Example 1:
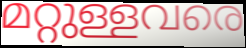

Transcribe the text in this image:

മറ്റുള്ളവരെ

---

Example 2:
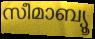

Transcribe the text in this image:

സീമാബ്യൂ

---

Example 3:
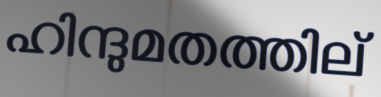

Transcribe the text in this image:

ഹിന്ദുമതത്തില്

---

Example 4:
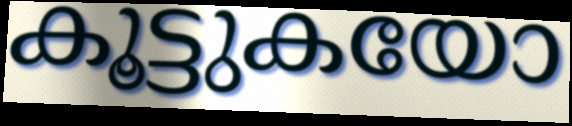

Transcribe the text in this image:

കൂട്ടുകയോ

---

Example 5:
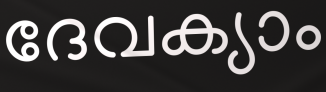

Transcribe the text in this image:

ദേവക്യാം